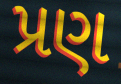
પ્રણ